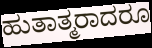
ಹುತಾತ್ಮರಾದರೂ